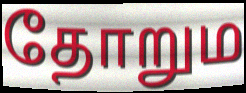
தோறும